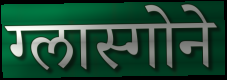
ग्लास्गोने